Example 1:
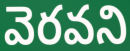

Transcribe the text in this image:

వెరవని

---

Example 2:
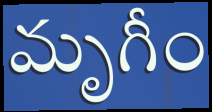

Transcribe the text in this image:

మృగీం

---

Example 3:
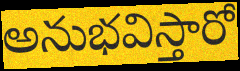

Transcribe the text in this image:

అనుభవిస్తారో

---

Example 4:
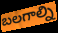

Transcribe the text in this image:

బలగాల్ని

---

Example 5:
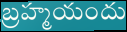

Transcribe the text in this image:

బ్రహ్మయందు